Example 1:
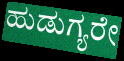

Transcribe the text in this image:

ಹುಡುಗ್ಯರೇ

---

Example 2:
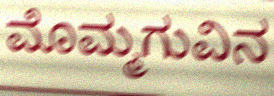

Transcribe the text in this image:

ಮೊಮ್ಮಗುವಿನ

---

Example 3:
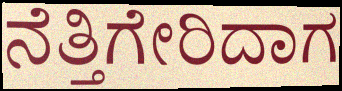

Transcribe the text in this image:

ನೆತ್ತಿಗೇರಿದಾಗ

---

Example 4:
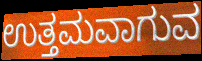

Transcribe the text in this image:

ಉತ್ತಮವಾಗುವ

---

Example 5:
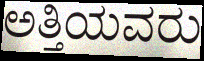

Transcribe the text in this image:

ಅತ್ತಿಯವರು